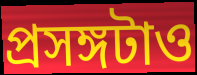
প্রসঙ্গটাও